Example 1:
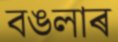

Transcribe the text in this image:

বঙলাৰ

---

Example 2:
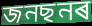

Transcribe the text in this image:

জনছনৰ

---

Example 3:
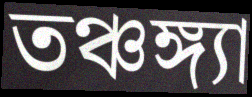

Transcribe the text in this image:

তঞ্চঙ্গ্যা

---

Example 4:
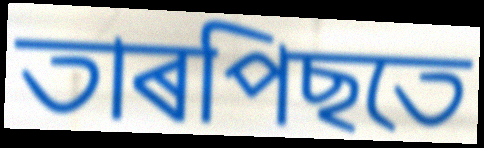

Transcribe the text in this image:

তাৰপিছতে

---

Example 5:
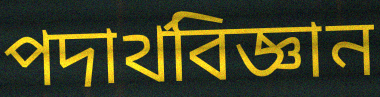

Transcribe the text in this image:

পদাৰ্থবিজ্ঞান